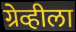
ग्रेव्हीला